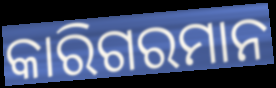
କାରିଗରମାନ